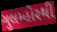
ગુલમ્હોરથી